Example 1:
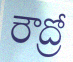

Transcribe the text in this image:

రౌద్రో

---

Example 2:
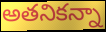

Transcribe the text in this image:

అతనికన్నా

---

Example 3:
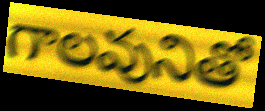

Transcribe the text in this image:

గాలవునితో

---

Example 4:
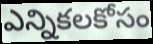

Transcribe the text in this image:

ఎన్నికలకోసం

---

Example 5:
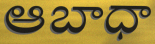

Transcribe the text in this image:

ఆబాధా